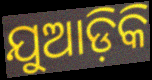
ଯୁଆଡ଼ିକି